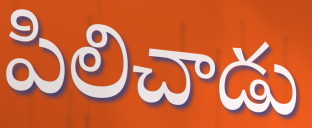
పిలిచాడు